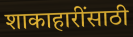
शाकाहारींसाठी